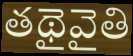
తథైవైతి